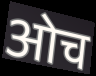
ओच